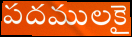
పదములకై